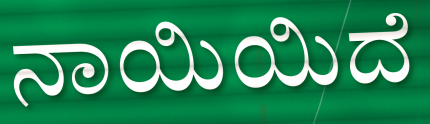
ನಾಯಿಯಿದೆ